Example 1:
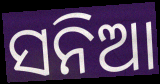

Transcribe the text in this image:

ସନିଆ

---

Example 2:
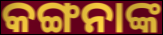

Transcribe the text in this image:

କଙ୍ଗନାଙ୍କ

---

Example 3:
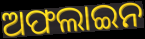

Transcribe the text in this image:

ଅଫଲାଇନ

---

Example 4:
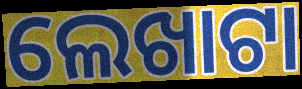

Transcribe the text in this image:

ଲେଖାଟା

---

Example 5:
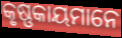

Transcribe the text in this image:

କୃଷ୍ଣକାୟମାନେ